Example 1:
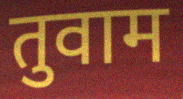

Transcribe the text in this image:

तुवाम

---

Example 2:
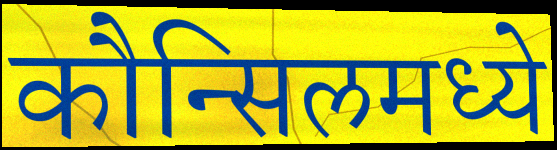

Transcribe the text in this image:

कौन्सिलमध्ये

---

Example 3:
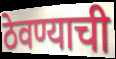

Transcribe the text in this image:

ठेवण्याची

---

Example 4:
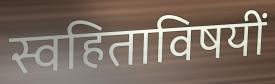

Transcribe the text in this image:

स्वहिताविषयीं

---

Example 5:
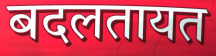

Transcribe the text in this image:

बदलतायत